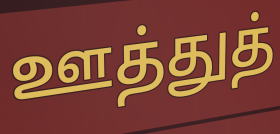
ஊத்துத்